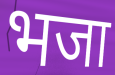
भजा